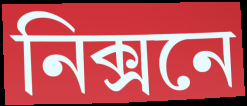
নিক্সনে